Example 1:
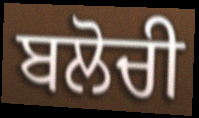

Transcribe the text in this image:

ਬਲੋਚੀ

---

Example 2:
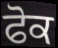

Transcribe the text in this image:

ਫੋਕ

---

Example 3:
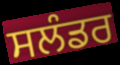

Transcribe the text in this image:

ਸਲੰਡਰ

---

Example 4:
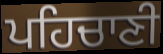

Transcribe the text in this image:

ਪਹਿਚਾਣੀ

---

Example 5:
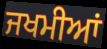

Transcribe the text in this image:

ਜਖਮੀਆਂ